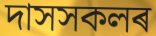
দাসসকলৰ